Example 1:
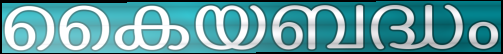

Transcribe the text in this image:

കൈയബദ്ധം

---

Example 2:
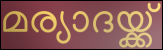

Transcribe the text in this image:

മര്യാദയ്ക്ക്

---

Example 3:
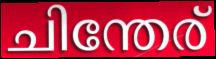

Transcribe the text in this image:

ചിന്തേര്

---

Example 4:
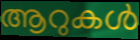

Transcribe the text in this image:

ആറുകൾ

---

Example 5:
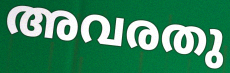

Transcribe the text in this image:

അവരതു